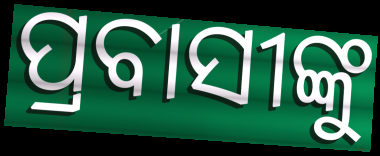
ପ୍ରବାସୀଙ୍କୁ